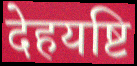
देहयष्टि